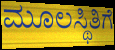
ಮೂಲಸ್ಥಿತಿಗೆ